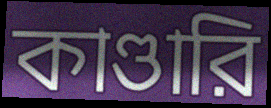
কাণ্ডারি